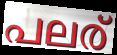
പലര്